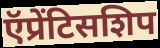
ऍप्रेंटिसशिप